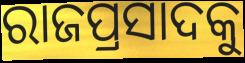
ରାଜପ୍ରସାଦକୁ